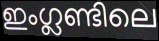
ഇംഗ്ലണ്ടിലെ